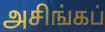
அசிங்கப்